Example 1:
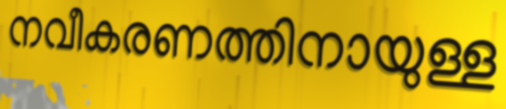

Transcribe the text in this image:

നവീകരണത്തിനായുള്ള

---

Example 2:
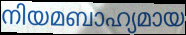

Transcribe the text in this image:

നിയമബാഹ്യമായ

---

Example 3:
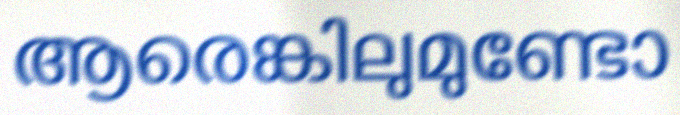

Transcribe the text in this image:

ആരെങ്കിലുമുണ്ടോ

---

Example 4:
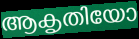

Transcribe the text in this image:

ആകൃതിയോ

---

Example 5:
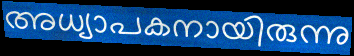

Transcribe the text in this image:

അധ്യാപകനായിരുന്നു